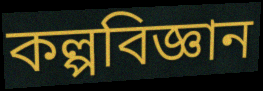
কল্পবিজ্ঞান